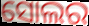
ସୋଲର